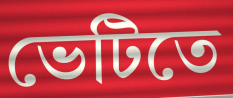
ভেটিতে